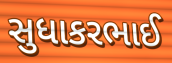
સુધાકરભાઈ